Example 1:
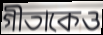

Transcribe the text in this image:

গীতাকেও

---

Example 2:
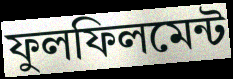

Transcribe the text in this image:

ফুলফিলমেন্ট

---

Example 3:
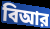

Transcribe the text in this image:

বিআর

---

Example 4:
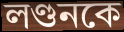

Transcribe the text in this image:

লণ্ডনকে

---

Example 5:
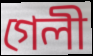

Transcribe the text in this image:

গেলী